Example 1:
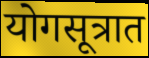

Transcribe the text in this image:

योगसूत्रात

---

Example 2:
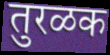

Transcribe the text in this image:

तुरळक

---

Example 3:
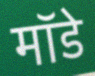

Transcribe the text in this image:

मॉडे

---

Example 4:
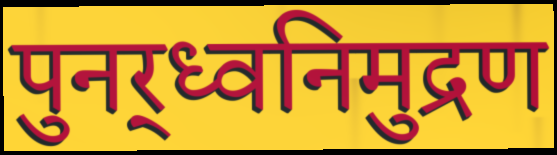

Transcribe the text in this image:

पुनर्ध्वनिमुद्रण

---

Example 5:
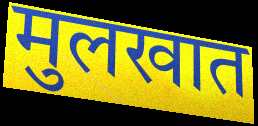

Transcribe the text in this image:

मुलखात